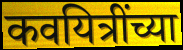
कवयित्रींच्या